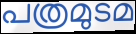
പത്രമുടമ